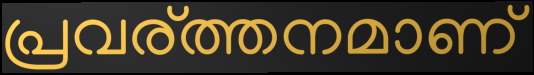
പ്രവര്ത്തനമാണ്